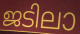
ജടിലാ